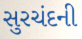
સુરચંદની